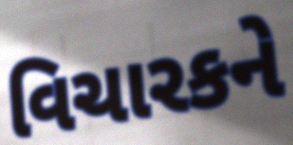
વિચારકને